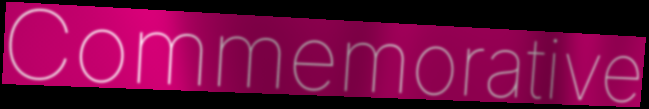
Commemorative